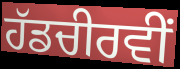
ਹੱਡਚੀਰਵੀਂ